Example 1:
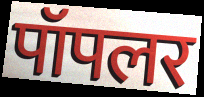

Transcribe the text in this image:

पॉपलर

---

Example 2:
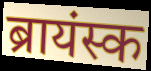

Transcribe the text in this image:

ब्रायंस्क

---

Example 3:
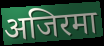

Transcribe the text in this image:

अजिरमा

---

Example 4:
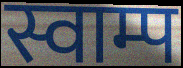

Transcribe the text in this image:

स्वाम्प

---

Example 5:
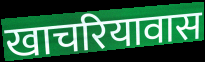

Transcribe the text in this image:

खाचरियावास